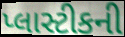
પ્લાસ્ટીકની